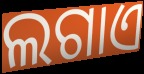
ଲଗାଏ